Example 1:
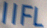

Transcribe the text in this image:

IIFL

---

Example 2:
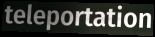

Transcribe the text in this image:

teleportation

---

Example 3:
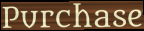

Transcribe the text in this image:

Purchase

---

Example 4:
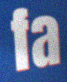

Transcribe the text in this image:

fa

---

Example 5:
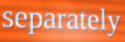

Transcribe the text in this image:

separately